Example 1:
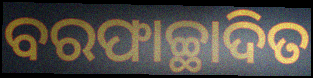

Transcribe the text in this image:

ବରଫାଚ୍ଛାଦିତ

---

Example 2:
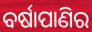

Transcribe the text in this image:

ବର୍ଷାପାଣିର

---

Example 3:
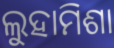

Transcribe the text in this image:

ଲୁହାମିଶା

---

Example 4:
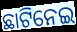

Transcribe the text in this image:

ଛାଟିନେଇ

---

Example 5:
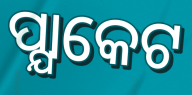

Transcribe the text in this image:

ପ୍ଯାକେଟ